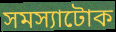
সমস্যাটোক